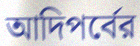
আদিপর্বের